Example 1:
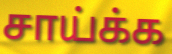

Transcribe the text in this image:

சாய்க்க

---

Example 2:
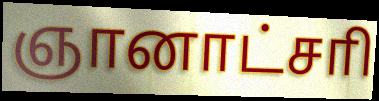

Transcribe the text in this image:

ஞானாட்சரி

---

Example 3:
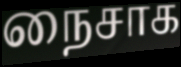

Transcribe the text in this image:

நைசாக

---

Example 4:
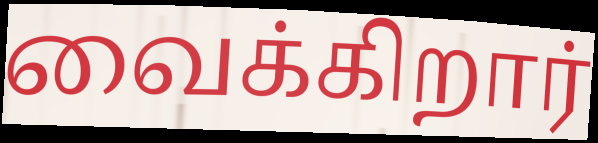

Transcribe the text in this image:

வைக்கிறார்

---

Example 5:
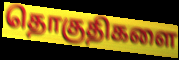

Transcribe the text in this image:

தொகுதிகளை